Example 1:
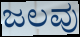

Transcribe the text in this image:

ಜಲವು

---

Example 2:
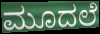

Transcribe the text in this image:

ಮೂದಲೆ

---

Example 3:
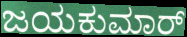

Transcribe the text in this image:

ಜಯಕುಮಾರ್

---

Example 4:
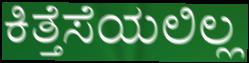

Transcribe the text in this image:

ಕಿತ್ತೆಸೆಯಲಿಲ್ಲ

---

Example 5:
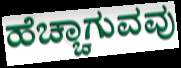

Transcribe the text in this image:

ಹೆಚ್ಚಾಗುವವು